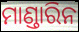
ମାଣ୍ଡାରିନ